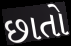
છાતો